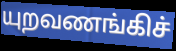
யுறவணங்கிச்